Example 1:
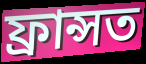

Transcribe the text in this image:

ফ্ৰান্সত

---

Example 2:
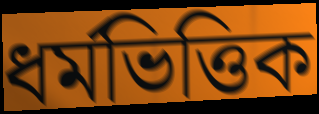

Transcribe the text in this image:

ধৰ্মভিত্তিক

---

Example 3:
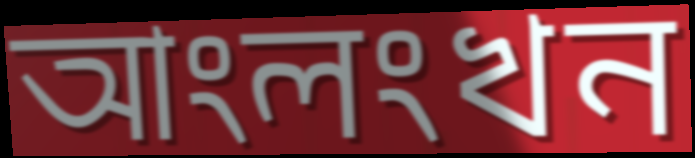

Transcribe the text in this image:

আংলংখন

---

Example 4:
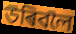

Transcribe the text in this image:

উৰিবলৈ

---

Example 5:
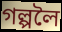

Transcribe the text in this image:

গল্পলৈ